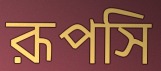
রূপসি